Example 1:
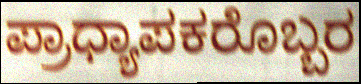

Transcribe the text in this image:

ಪ್ರಾಧ್ಯಾಪಕರೊಬ್ಬರ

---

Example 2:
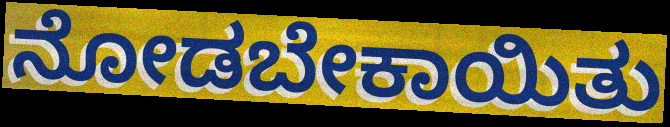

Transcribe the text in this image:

ನೋಡಬೇಕಾಯಿತು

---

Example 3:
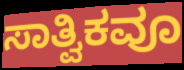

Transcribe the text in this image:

ಸಾತ್ವಿಕವೂ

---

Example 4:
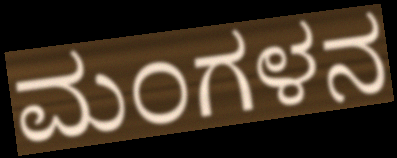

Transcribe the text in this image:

ಮಂಗಳನ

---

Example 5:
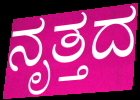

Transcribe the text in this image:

ನೃತ್ತದ